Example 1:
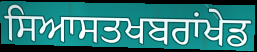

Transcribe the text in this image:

ਸਿਆਸਤਖਬਰਾਂਖੇਡ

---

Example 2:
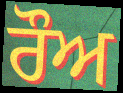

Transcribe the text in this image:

ਰੌਅ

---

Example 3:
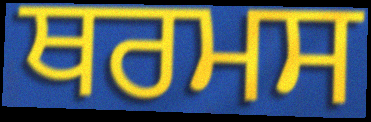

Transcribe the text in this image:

ਥਰਮਸ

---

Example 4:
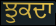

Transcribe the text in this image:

ਝੁਕਦਾ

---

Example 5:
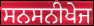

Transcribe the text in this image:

ਸਨਸਨੀਖੇਜ